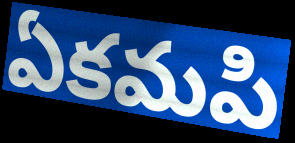
ఏకమపి